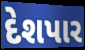
દેશપાર